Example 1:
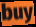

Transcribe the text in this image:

buy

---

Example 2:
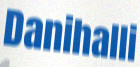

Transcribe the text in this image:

Danihalli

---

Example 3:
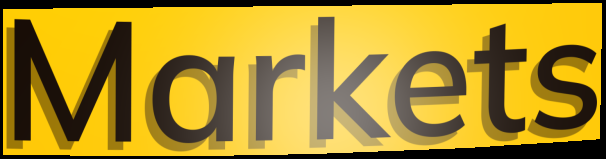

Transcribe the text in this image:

Markets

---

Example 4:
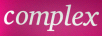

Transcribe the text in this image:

complex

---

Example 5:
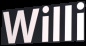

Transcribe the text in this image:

Willi